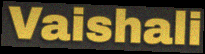
Vaishali